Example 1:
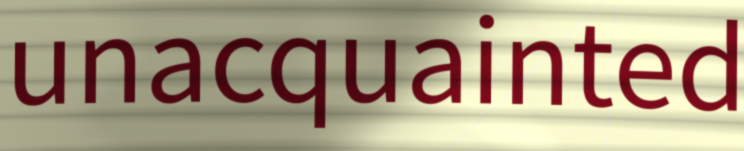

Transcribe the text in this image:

unacquainted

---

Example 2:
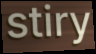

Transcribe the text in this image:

stiry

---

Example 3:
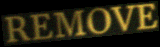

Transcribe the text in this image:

REMOVE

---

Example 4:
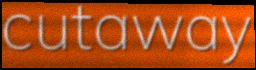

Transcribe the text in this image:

cutaway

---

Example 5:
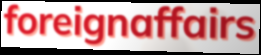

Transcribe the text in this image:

foreignaffairs